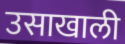
उसाखाली